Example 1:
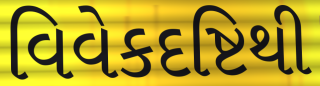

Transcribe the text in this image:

વિવેકદષ્ટિથી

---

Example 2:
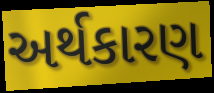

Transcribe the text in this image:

અર્થકારણ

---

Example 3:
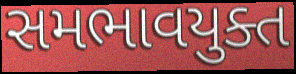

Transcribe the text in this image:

સમભાવયુક્ત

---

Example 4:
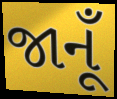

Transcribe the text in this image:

જાનૂઁ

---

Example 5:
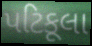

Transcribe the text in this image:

પટિકૂલા